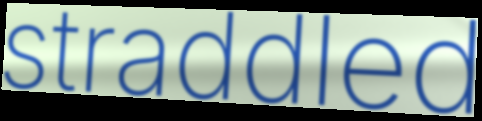
straddled